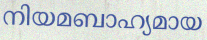
നിയമബാഹ്യമായ